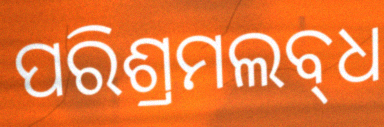
ପରିଶ୍ରମଲବ୍‍ଧ